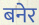
बनेर